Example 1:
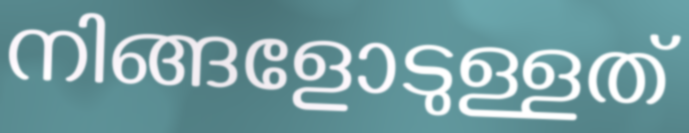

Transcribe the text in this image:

നിങ്ങളോടുള്ളത്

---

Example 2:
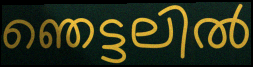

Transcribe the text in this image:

ഞെട്ടലിൽ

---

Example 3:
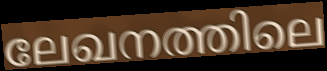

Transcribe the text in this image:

ലേഖനത്തിലെ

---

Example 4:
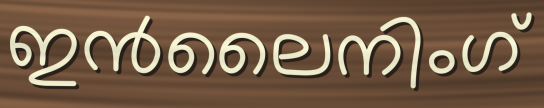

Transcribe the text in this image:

ഇൻലൈനിംഗ്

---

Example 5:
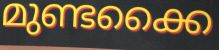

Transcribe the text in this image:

മുണ്ടക്കൈ